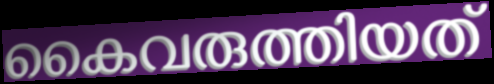
കൈവരുത്തിയത്